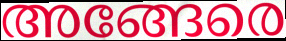
അങ്ങേരെ